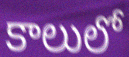
కాలులో